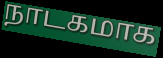
நாடகமாக